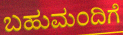
ಬಹುಮಂದಿಗೆ